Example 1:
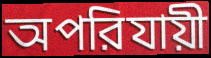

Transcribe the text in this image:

অপরিযায়ী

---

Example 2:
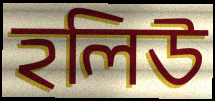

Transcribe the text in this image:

হলিউ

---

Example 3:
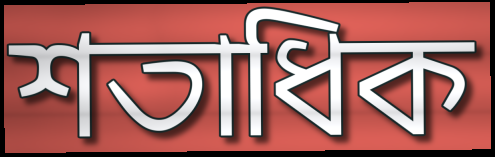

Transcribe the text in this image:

শতাধিক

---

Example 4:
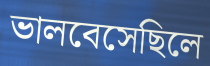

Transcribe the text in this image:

ভালবেসেছিলে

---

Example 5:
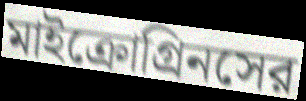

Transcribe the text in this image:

মাইক্রোগ্রিনসের